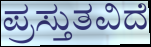
ಪ್ರಸ್ತುತವಿದೆ